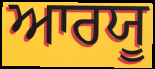
ਆਰਯੂ